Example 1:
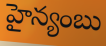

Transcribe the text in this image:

హైన్యంబు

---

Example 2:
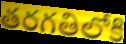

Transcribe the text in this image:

తరగతిలోకి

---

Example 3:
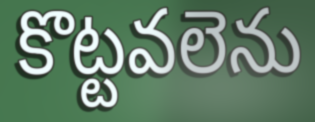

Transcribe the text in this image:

కొట్టవలెను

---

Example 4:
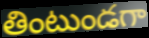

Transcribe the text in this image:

తింటుండగా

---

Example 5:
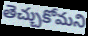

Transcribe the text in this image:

తెచ్చుకోమని